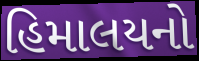
હિમાલયનો